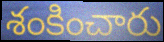
శంకించారు